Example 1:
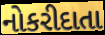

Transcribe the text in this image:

નોકરીદાતા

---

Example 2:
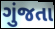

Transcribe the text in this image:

ગુંજતા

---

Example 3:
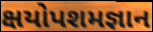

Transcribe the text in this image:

ક્ષયોપશમજ્ઞાન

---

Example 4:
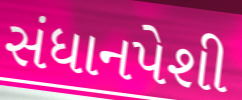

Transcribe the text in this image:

સંધાનપેશી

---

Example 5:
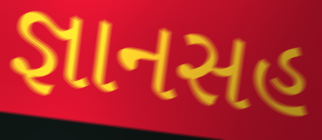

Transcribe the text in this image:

જ્ઞાનસહ